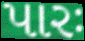
પારઃ